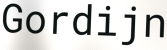
Gordijn